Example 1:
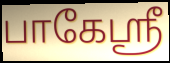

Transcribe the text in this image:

பாகேஸ்ரீ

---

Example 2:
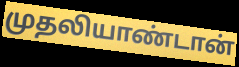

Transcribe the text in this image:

முதலியாண்டான்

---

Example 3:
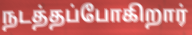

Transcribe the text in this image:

நடத்தப்போகிறார்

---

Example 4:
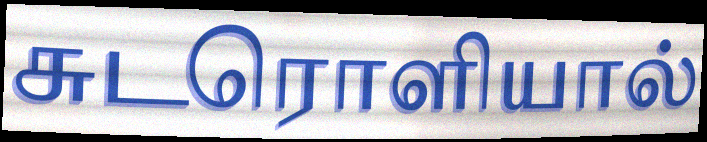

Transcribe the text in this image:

சுடரொளியால்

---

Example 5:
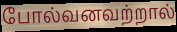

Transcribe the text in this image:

போல்வனவற்றால்